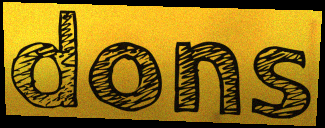
dons